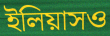
ইলিয়াসও